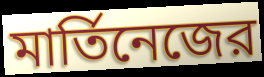
মার্তিনেজের